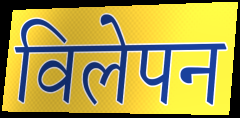
विलेपन